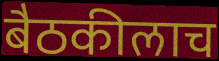
बैठकीलाच